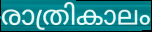
രാത്രികാലം